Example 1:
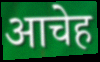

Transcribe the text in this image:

आचेह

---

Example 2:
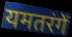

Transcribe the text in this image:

यमतरंगें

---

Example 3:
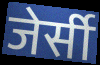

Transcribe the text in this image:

जेर्सी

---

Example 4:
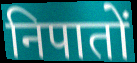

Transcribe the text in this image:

निपातों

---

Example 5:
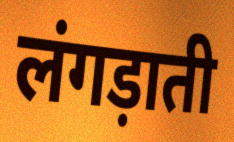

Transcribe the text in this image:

लंगड़ाती